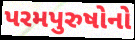
પરમપુરુષોનો